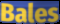
Bales